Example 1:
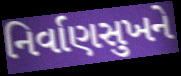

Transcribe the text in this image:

નિર્વાણસુખને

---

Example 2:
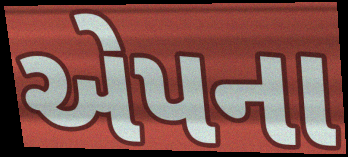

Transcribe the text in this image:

એપના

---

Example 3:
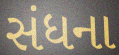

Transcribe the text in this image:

સંધના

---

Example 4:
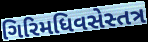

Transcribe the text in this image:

ગિરિમધિવસેસ્તત્ર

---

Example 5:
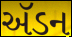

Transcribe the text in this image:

ઍડન